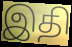
இதி